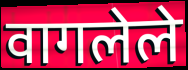
वागलेले